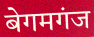
बेगमगंज